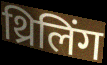
थ्रिलिंग